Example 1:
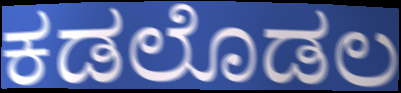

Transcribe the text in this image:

ಕಡಲೊಡಲ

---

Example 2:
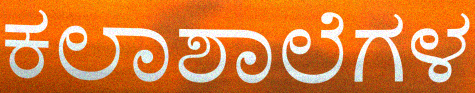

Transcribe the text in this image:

ಕಲಾಶಾಲೆಗಳ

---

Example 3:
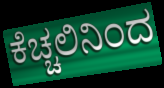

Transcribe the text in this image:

ಕೆಚ್ಚಲಿನಿಂದ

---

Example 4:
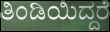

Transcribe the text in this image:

ತಿಂಡಿಯಿದ್ದರೆ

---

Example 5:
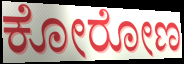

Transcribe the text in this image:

ಕೋರೋಣ